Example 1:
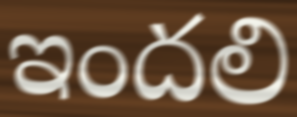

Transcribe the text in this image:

ఇందలి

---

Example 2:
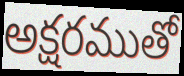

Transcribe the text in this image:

అక్షరముతో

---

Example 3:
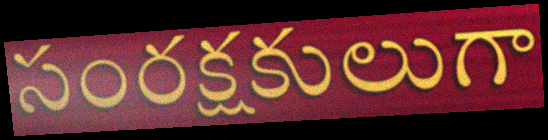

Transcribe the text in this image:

సంరక్షకులుగా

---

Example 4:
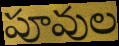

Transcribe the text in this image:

పూవుల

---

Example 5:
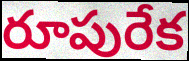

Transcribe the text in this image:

రూపురేక